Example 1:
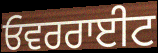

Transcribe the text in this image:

ਓਵਰਰਾਈਟ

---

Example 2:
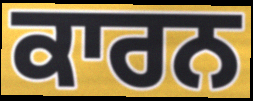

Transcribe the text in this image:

ਕਾਰਨ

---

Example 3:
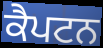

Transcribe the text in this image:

ਕੈਪਟਨ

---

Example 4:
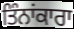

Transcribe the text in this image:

ਤਿੰਨਾਂਕਾਰਾ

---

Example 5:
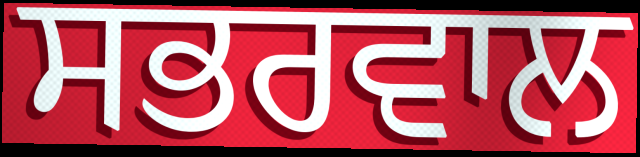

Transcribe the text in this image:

ਸਭਰਵਾਲ